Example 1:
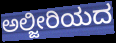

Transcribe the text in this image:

ಅಲ್ಜೀರಿಯದ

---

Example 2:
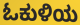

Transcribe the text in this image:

ಓಕುಳಿಯ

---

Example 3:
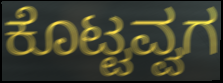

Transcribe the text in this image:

ಕೊಟ್ಟವ್ವಗ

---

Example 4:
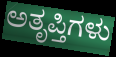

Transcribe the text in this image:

ಅತೃಪ್ತಿಗಳು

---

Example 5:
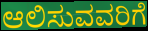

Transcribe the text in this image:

ಆಲಿಸುವವರಿಗೆ